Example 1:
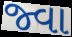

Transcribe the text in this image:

જ્વા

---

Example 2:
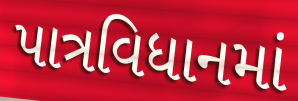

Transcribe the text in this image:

પાત્રવિધાનમાં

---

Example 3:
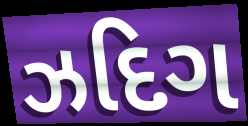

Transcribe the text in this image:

ઝદિગ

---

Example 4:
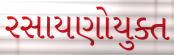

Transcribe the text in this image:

રસાયણોયુક્ત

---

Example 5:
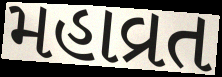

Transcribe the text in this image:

મહાવ્રત